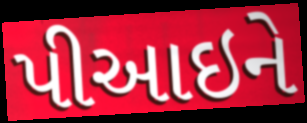
પીઆઇને